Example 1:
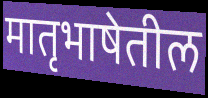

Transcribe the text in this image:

मातृभाषेतील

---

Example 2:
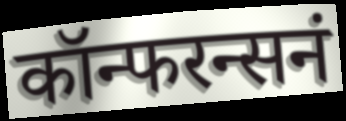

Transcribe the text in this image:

कॉन्फरन्सनं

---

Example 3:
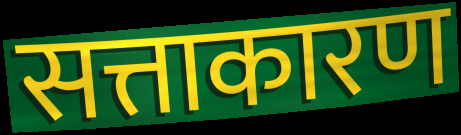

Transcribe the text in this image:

सत्ताकारण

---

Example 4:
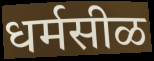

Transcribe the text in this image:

धर्मसीळ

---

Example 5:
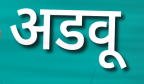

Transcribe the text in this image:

अडवू